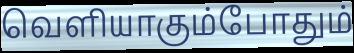
வெளியாகும்போதும்